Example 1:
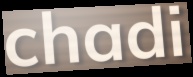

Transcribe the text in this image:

chadi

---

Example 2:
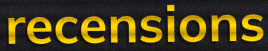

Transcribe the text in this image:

recensions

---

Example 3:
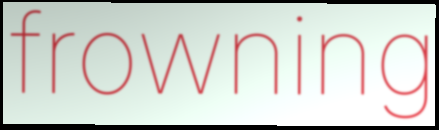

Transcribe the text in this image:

frowning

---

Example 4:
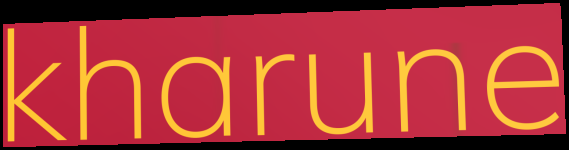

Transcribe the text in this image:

kharune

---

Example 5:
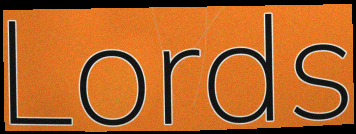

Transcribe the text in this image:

Lords